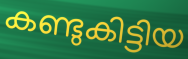
കണ്ടുകിട്ടിയ